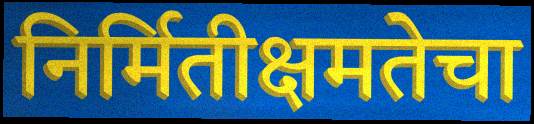
निर्मितीक्षमतेचा